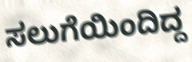
ಸಲುಗೆಯಿಂದಿದ್ದ